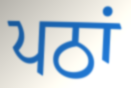
ਪਠਾਂ